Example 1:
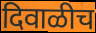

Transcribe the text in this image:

दिवाळीच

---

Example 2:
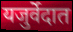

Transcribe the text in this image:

यजुर्वेदात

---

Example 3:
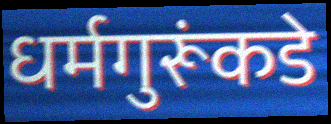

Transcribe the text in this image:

धर्मगुरूंकडे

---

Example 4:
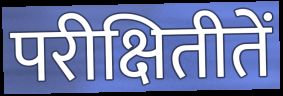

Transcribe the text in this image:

परीक्षितीतें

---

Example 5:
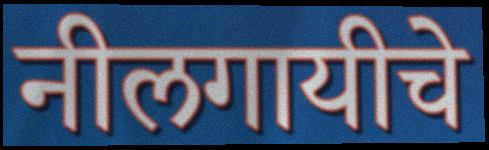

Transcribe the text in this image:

नीलगायीचे